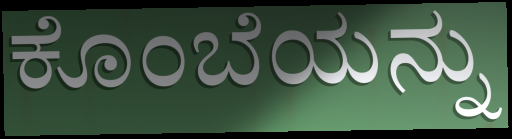
ಕೊಂಬೆಯನ್ನು